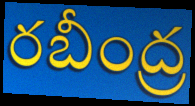
రబీంద్ర